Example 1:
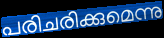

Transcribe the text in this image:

പരിചരിക്കുമെന്നു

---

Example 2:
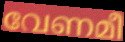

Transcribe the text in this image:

വേണമീ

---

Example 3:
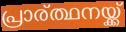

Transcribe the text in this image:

പ്രാര്ത്ഥനയ്ക്ക്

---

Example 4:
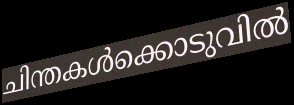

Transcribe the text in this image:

ചിന്തകൾക്കൊടുവിൽ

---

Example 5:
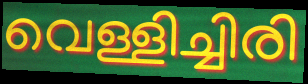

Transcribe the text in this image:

വെള്ളിച്ചിരി